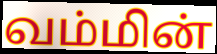
வம்மின்